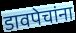
डावपेचांना